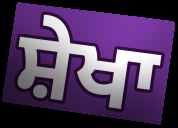
ਸ਼ੇਖਾ